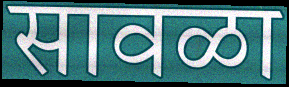
सावळा